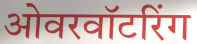
ओवरवॉटरिंग